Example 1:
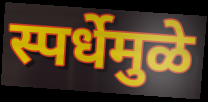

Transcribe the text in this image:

स्पर्धेमुळे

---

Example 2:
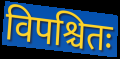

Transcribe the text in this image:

विपश्चितः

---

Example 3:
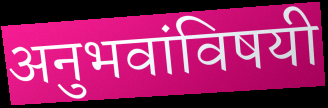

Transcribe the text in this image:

अनुभवांविषयी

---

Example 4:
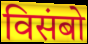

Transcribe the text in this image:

विसंबो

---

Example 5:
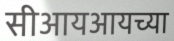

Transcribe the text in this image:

सीआयआयच्या